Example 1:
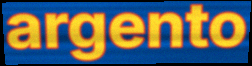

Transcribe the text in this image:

argento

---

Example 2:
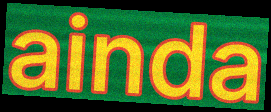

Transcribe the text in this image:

ainda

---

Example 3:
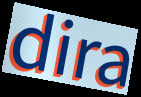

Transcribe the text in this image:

dira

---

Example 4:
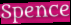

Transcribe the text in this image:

Spence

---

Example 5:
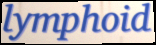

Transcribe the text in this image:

lymphoid